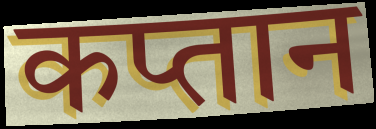
कप्तान